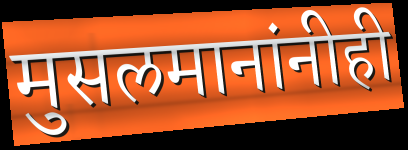
मुसलमानांनीही